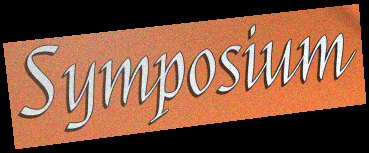
Symposium